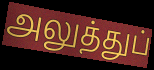
அலுத்துப்